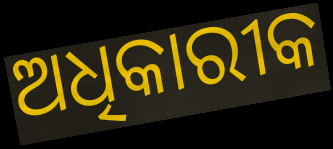
ଅଧିକାରୀକ